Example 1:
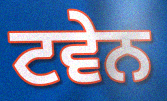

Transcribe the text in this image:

ਟਵੇਨ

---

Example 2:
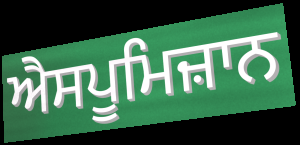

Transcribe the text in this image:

ਐਸਪੂਮਿਜ਼ਾਨ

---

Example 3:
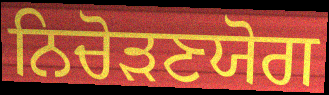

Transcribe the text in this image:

ਨਿਚੋੜਣਯੋਗ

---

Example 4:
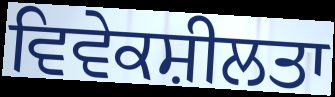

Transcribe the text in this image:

ਵਿਵੇਕਸ਼ੀਲਤਾ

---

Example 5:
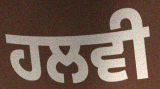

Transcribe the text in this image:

ਹਲਵੀ